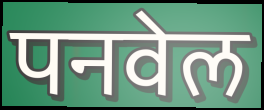
पनवेल